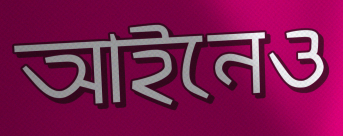
আইনেও